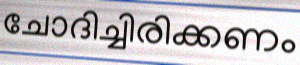
ചോദിച്ചിരിക്കണം